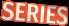
SERIES